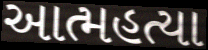
આત્મહત્યા